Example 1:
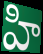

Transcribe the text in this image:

హి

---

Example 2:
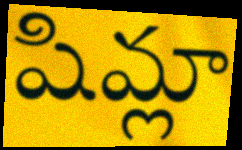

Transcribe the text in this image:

షిమ్లా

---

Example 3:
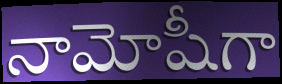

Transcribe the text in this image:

నామోషీగా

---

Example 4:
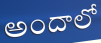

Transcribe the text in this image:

అందాలో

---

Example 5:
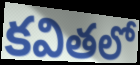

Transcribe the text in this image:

కవితలో